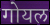
गोयल